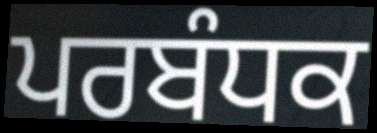
ਪਰਬੰਧਕ